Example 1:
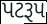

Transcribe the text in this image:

પટરૂપ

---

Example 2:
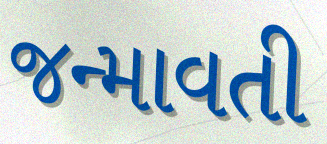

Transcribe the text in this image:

જન્માવતી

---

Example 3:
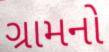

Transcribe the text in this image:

ગ્રામનો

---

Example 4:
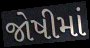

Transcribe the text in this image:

જોષીમાં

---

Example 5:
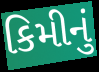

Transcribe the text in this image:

કિમીનું